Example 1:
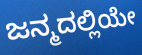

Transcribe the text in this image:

ಜನ್ಮದಲ್ಲಿಯೇ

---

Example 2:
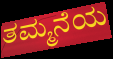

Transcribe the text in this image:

ತಮ್ಮನೆಯ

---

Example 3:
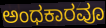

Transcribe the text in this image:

ಅಂಧಕಾರವೂ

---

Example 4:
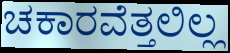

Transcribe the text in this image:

ಚಕಾರವೆತ್ತಲಿಲ್ಲ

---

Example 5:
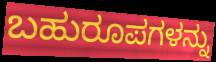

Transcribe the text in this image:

ಬಹುರೂಪಗಳನ್ನು